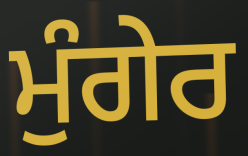
ਮੁੰਗੇਰ